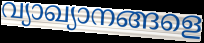
വ്യാഖ്യാനങ്ങളെ